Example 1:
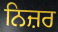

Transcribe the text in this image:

ਨਿਜ਼ਰ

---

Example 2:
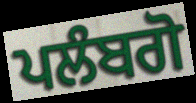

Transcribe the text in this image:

ਪਲੰਬਗੋ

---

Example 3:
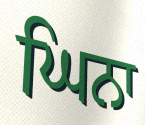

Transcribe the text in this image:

ਘਿਨਾ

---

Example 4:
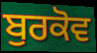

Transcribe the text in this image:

ਬੁਰਕੋਵ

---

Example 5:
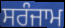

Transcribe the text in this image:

ਸਰੰਜਾਮ